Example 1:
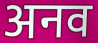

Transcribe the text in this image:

अनव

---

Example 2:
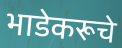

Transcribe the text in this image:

भाडेकरूचे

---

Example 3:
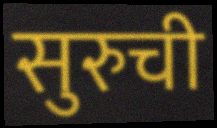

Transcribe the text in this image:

सुरुची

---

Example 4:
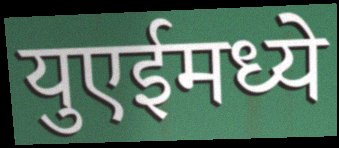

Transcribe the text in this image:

युएईमध्ये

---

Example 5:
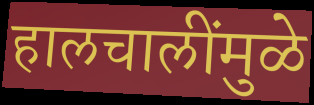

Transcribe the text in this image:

हालचालींमुळे